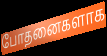
போதனைகளாக